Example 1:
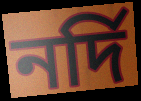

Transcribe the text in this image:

নর্দি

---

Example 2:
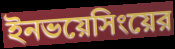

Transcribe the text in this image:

ইনভয়েসিংয়ের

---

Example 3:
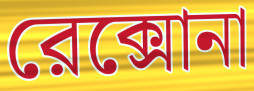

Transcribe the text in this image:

রেক্সোনা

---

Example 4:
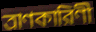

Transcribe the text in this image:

ত্রাণকারিণী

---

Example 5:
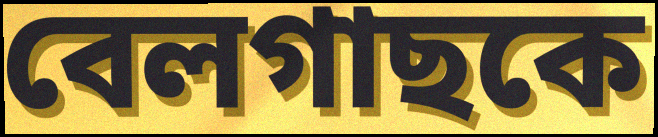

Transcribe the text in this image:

বেলগাছকে